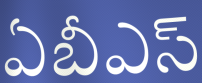
ఏబీఎస్